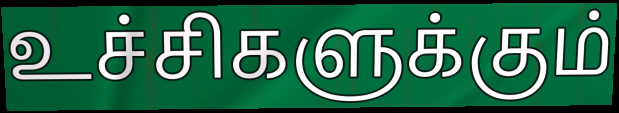
உச்சிகளுக்கும்